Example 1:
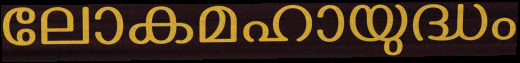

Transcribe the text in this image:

ലോകമഹായുദ്ധം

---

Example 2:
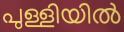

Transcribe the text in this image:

പുള്ളിയിൽ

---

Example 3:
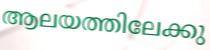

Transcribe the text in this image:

ആലയത്തിലേക്കു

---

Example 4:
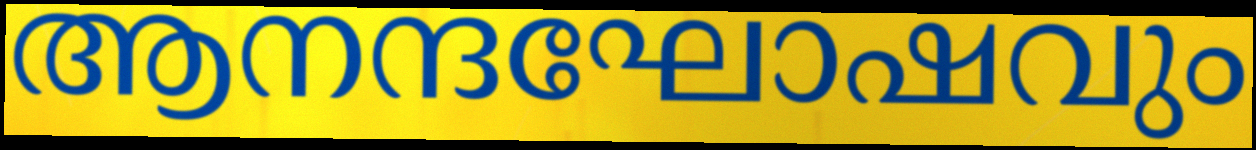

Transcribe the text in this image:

ആനന്ദഘോഷവും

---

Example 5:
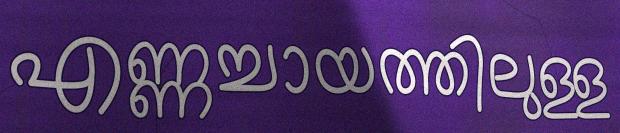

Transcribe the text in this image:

എണ്ണച്ചായത്തിലുള്ള